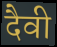
दैवी